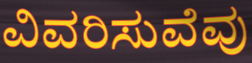
ವಿವರಿಸುವೆವು